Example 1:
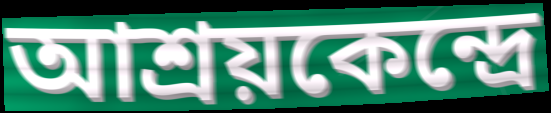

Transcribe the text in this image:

আশ্রয়কেন্দ্রে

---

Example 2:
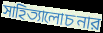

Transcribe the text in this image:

সাহিত্যালোচনার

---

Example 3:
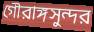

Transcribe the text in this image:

গৌরাঙ্গসুন্দর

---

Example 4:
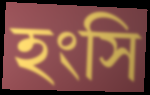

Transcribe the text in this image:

হংসি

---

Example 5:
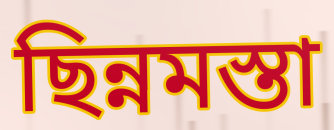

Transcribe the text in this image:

ছিন্নমস্তা